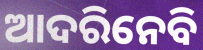
ଆଦରିନେବି